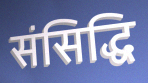
संसिद्धि